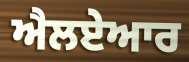
ਐਲਏਆਰ